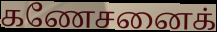
கணேசனைக்